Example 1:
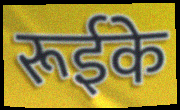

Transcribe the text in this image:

रूईके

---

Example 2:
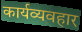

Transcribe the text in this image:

कार्यव्यवहार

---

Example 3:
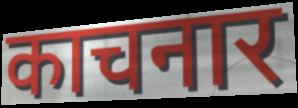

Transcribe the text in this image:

काचनार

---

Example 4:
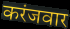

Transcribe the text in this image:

करंजवार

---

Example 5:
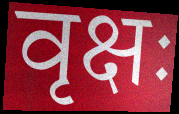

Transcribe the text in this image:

वृक्षः